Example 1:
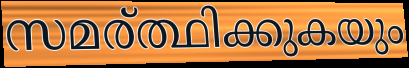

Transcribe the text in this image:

സമര്ത്ഥിക്കുകയും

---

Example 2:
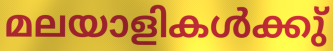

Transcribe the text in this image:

മലയാളികൾക്കു്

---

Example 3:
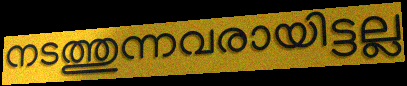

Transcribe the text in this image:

നടത്തുന്നവരായിട്ടല്ല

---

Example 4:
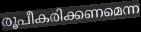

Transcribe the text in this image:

രൂപീകരിക്കണമെന്ന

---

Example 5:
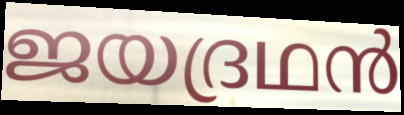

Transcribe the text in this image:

ജയദ്രഥൻ